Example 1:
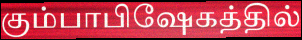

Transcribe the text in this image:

கும்பாபிஷேகத்தில்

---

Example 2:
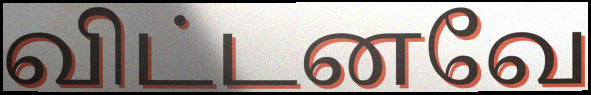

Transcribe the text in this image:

விட்டனவே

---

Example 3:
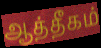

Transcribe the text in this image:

ஆத்தீகம்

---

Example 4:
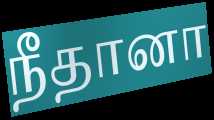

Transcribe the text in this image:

நீதானா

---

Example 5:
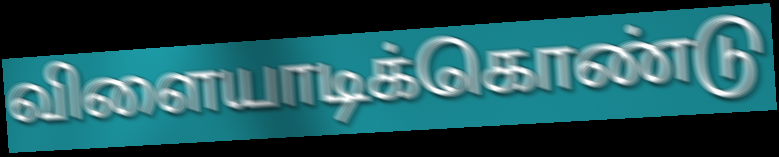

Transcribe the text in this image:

விளையாடிக்கொண்டு